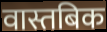
वास्तबिक